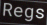
Regs